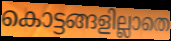
കൊട്ടങ്ങളില്ലാതെ